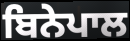
ਬਿਨੇਪਾਲ